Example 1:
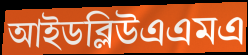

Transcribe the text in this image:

আইডব্লিউএএমএ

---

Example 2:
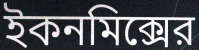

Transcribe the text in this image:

ইকনমিক্সের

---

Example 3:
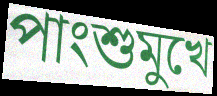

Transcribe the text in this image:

পাংশুমুখে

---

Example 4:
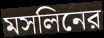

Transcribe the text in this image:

মসলিনের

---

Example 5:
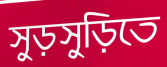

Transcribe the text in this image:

সুড়সুড়িতে